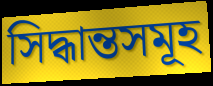
সিদ্ধান্তসমূহ